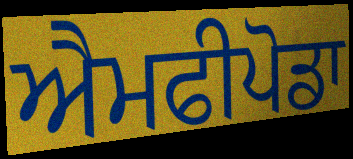
ਐਮਫੀਪੋਡਾ